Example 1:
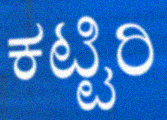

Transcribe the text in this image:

ಕಟ್ಟಿರಿ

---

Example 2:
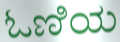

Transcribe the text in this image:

ಓಣಿಯ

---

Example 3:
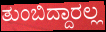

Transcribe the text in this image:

ತುಂಬಿದ್ದಾರಲ್ಲ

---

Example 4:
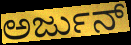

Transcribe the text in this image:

ಅರ್ಜುನ್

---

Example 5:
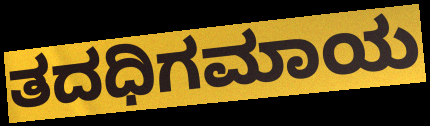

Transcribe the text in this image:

ತದಧಿಗಮಾಯ